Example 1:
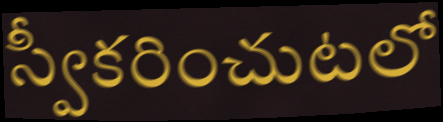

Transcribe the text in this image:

స్వీకరించుటలో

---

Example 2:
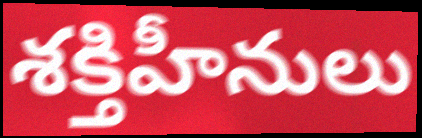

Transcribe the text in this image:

శక్తిహీనులు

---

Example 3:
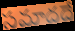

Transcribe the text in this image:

సమాదదే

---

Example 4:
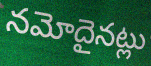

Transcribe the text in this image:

నమోదైనట్లు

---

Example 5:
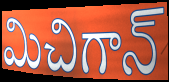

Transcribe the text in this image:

మిచిగాన్